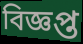
বিজ্ঞপ্ত